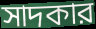
সাদকার